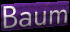
Baum